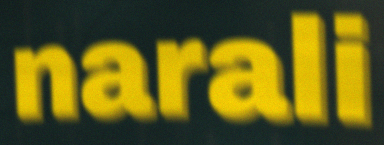
narali